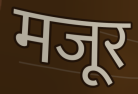
मजूर